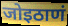
जोइठाणं